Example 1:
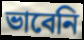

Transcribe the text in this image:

ভাবেনি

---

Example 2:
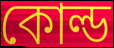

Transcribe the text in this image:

কোল্ড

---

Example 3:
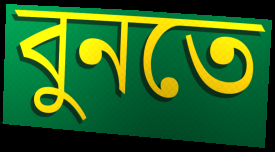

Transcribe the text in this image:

বুনতে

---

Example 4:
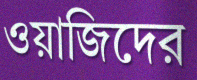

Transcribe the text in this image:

ওয়াজিদের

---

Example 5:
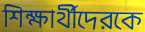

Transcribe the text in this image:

শিক্ষার্থীদেরকে